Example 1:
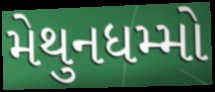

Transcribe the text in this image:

મેથુનધમ્મો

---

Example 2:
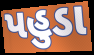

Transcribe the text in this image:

પહુડા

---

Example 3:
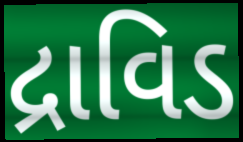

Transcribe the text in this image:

દ્રાવિડ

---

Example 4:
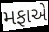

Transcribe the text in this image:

મફાએ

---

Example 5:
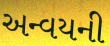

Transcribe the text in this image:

અન્વયની